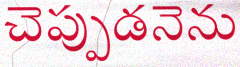
చెప్పుడనెను